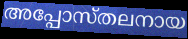
അപ്പോസ്തലനായ